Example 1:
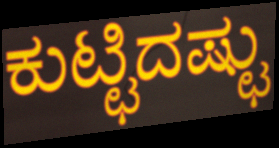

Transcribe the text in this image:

ಕುಟ್ಟಿದಷ್ಟು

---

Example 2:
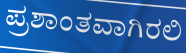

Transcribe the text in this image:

ಪ್ರಶಾಂತವಾಗಿರಲಿ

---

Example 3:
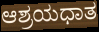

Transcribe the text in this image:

ಆಶ್ರಯಧಾತ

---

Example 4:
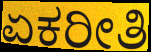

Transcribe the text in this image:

ಏಕರೀತಿ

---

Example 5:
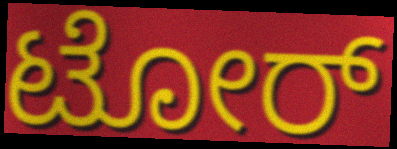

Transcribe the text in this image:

ಟೋರ್